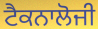
ਟੈਕਨਾਲੋਜੀ